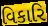
વિકારિ